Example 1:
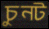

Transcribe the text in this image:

চুনট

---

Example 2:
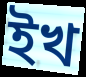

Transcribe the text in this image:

ইখ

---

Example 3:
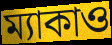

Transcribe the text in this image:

ম্যাকাও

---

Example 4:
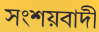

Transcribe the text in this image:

সংশয়বাদী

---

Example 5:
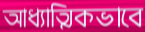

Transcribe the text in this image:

আধ্যাত্মিকভাবে